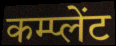
कम्प्लेंट